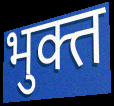
भुक्त